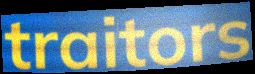
traitors